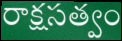
రాక్షసత్వం